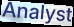
Analyst